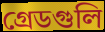
গ্রেডগুলি